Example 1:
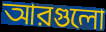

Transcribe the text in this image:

আরগুলো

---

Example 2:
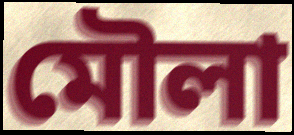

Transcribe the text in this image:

মৌলা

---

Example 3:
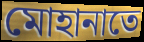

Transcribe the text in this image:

মোহানাতে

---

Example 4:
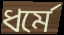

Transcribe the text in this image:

ধর্মে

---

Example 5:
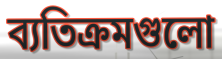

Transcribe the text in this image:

ব্যতিক্রমগুলো